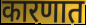
कारणात